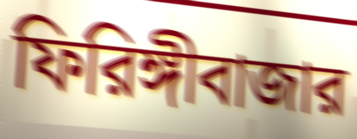
ফিরিঙ্গীবাজার